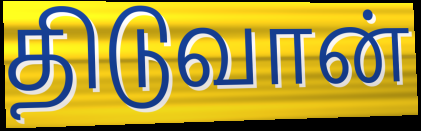
திடுவான்